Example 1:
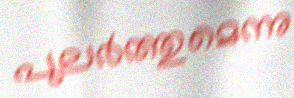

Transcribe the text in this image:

പുലർത്തുമെന്നു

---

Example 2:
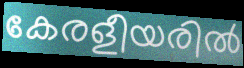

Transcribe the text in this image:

കേരളീയരിൽ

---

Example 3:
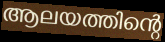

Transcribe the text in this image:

ആലയത്തിന്റെ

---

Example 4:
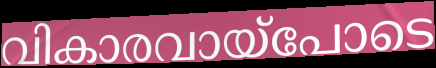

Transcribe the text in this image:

വികാരവായ്പോടെ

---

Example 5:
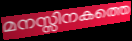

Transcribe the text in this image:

മനസ്സിനകത്തെ